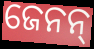
ଜେନନ୍